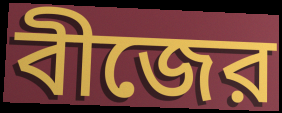
বীজের